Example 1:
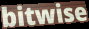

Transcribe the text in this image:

bitwise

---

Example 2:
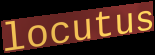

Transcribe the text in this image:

locutus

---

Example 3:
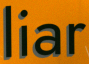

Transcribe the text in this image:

liar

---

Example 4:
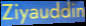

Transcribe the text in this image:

Ziyauddin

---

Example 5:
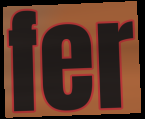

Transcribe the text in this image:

fer